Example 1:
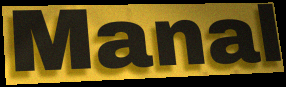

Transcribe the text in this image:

Manal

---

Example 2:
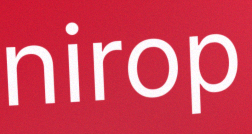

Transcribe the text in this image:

nirop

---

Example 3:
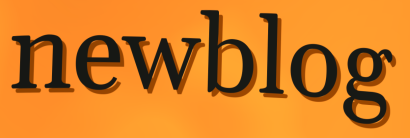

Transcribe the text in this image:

newblog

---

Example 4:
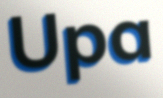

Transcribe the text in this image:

Upa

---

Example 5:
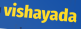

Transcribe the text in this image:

vishayada